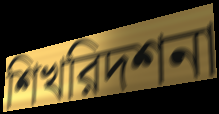
শিখরিদশনা